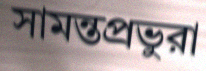
সামন্তপ্রভুরা